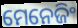
ମେନେଜିଂ